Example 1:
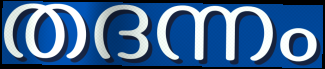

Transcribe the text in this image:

തദന്നം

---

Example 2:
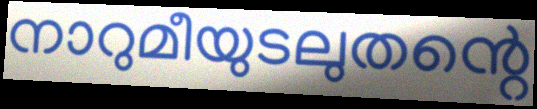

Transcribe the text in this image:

നാറുമീയുടലുതന്റെ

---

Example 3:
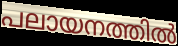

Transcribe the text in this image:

പലായനത്തിൽ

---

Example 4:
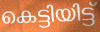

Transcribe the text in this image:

കെട്ടിയിട്ട്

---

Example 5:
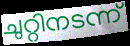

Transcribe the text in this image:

ചുറ്റിനടന്ന്